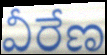
వీరేణ